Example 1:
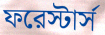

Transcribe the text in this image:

ফরেস্টার্স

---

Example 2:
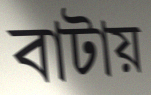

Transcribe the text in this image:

বাটায়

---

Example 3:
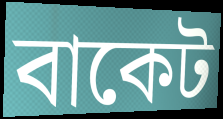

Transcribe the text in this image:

বাকেট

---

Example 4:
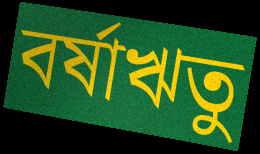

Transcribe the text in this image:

বর্ষাঋতু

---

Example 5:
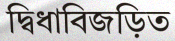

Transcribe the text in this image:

দ্বিধাবিজড়িত